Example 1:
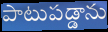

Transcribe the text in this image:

పాటుపడ్డాను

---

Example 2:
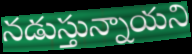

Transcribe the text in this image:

నడుస్తున్నాయని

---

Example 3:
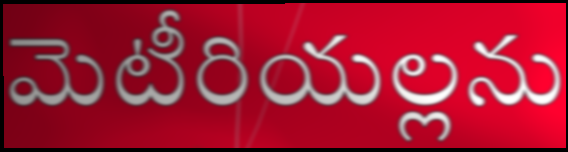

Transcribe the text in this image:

మెటీరియల్లను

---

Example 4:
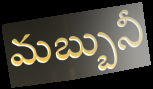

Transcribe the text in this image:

మబ్బునీ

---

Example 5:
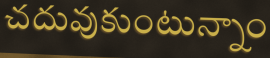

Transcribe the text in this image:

చదువుకుంటున్నాం